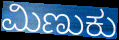
ಮಿಣುಕು